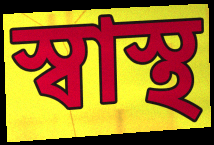
স্বাস্থ